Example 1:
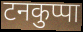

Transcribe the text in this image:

टनकुप्पा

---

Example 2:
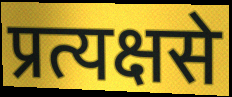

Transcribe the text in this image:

प्रत्यक्षसे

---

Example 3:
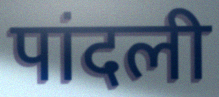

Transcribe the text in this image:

पांदली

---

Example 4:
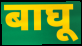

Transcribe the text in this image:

बाघू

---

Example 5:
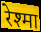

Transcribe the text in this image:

रेश्मा